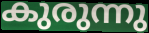
കുരുന്നു